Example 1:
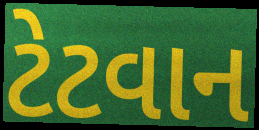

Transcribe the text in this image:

ટેટવાન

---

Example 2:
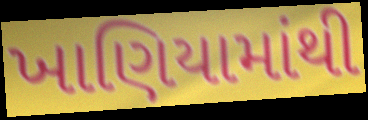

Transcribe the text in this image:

ખાણિયામાંથી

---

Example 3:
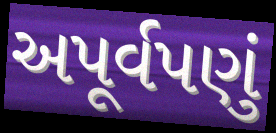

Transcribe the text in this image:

અપૂર્વપણું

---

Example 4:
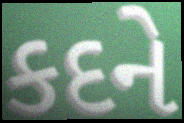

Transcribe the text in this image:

કદને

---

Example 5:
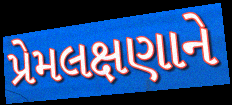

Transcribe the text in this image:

પ્રેમલક્ષણાને